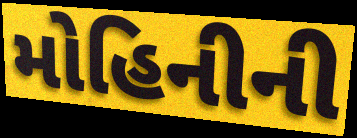
મોહિનીની